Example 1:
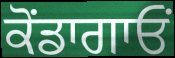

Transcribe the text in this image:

ਕੋਂਡਾਗਾਓਂ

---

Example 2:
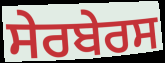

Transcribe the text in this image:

ਸੇਰਬੇਰਸ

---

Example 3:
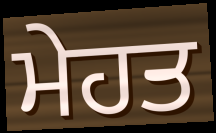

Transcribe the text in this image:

ਮੇਹਤ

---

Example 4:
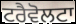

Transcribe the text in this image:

ਟਰੈਵੋਲਟਾ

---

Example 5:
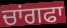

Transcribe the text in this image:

ਚਾਂਗਫਾ